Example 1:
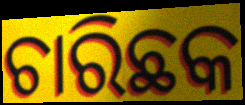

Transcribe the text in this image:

ଚାରିଛକ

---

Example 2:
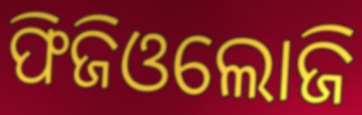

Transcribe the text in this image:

ଫିଜିଓଲୋଜି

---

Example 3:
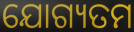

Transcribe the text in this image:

ଯୋଗ୍ୟତମ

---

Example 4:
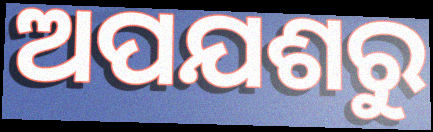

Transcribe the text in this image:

ଅପଯଶରୁ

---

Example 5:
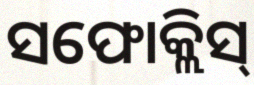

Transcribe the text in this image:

ସଫୋକ୍ଲିସ୍